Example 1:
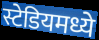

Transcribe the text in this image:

स्टेडियमध्ये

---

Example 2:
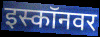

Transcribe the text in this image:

इस्कॉनवर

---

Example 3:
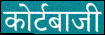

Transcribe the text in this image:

कोर्टबाजी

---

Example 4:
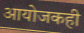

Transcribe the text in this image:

आयोजकही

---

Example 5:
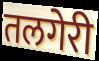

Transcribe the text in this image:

तलगेरी